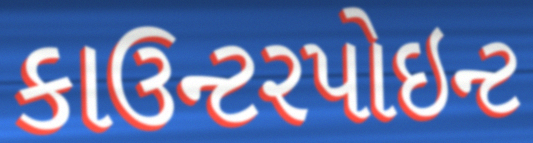
કાઉન્ટરપોઇન્ટ